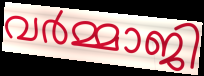
വർമ്മാജി